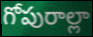
గోపురాల్లా